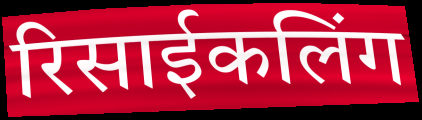
रिसाईकलिंग